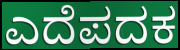
ಎದೆಪದಕ